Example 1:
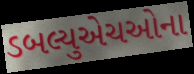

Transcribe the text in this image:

ડબલ્યુએચઓના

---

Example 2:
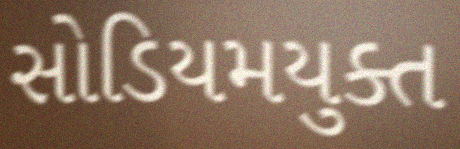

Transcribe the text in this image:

સોડિયમયુક્ત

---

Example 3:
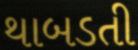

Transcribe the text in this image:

થાબડતી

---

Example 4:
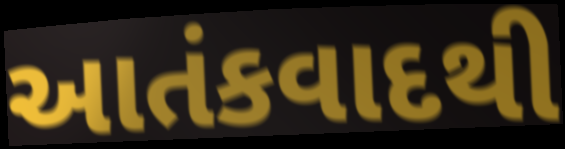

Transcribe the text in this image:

આતંકવાદથી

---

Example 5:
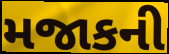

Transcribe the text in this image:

મજાકની